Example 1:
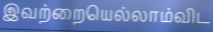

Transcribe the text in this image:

இவற்றையெல்லாம்விட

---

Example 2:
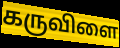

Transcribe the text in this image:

கருவிளை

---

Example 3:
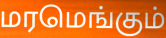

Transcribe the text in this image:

மரமெங்கும்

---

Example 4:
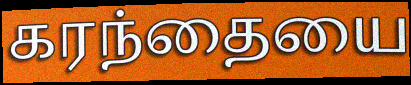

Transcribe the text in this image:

கரந்தையை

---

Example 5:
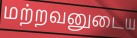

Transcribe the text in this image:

மற்றவனுடைய